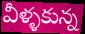
వీళ్ళకున్న